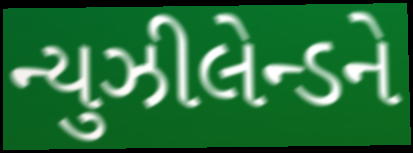
ન્યુઝીલેન્ડને